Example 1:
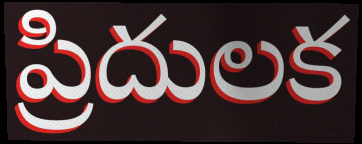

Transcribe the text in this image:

ప్రిదులక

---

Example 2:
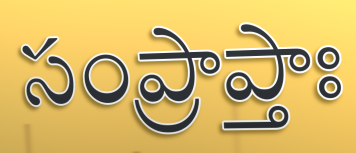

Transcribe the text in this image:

సంప్రాప్తాః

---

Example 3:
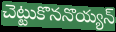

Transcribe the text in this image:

చెట్టుకొననొయ్యన్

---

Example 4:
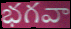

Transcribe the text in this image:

భగవా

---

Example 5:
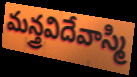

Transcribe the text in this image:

మన్త్రవిదేవాస్మి